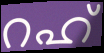
റഹ്